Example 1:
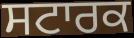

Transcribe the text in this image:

ਸਟਾਰਕ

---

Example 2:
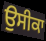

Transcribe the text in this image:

ਉਸੀਕਾ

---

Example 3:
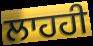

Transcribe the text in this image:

ਲਾਹਹੀ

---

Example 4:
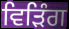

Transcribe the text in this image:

ਵਿੜਿੰਗ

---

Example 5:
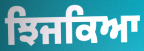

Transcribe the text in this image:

ਝਿਜਕਿਆ